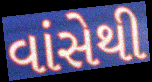
વાંસેથી